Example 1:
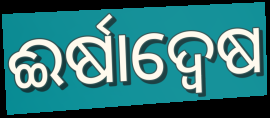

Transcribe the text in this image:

ଈର୍ଷାଦ୍ଵେଷ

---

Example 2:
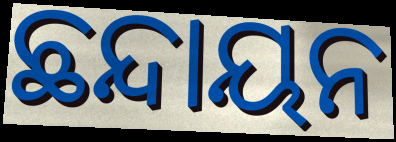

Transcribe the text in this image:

ଛନ୍ଦାୟନ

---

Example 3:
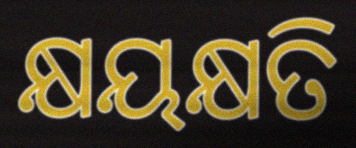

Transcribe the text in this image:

କ୍ଷୟକ୍ଷତି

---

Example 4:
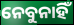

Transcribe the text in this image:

ନେବୁନାହିଁ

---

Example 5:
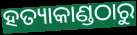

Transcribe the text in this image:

ହତ୍ୟାକାଣ୍ଡଠାରୁ